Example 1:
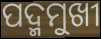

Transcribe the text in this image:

ପଦ୍ମମୁଖୀ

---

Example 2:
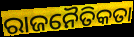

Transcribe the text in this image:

ରାଜନୈତିକତା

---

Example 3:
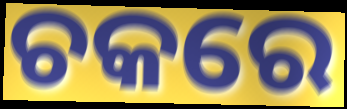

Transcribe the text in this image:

ଚକରେ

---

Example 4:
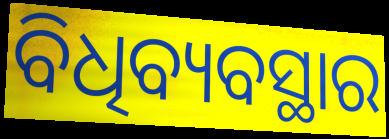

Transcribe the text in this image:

ବିଧିବ୍ୟବସ୍ଥାର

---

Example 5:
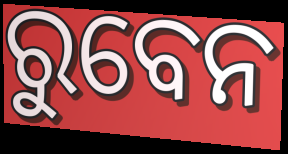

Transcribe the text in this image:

ରୁବେନ